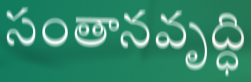
సంతానవృద్ధి